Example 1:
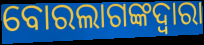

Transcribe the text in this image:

ବୋରଲାଗଙ୍କଦ୍ୱାରା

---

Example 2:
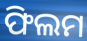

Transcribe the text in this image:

ଫିଲମ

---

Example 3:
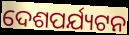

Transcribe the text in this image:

ଦେଶପର୍ଯ୍ୟଟନ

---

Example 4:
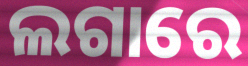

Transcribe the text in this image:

ଲଗାରେ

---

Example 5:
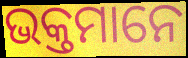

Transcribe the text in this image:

ଭକ୍ତମାନେ